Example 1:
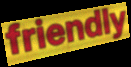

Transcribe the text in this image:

friendly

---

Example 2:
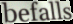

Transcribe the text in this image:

befalls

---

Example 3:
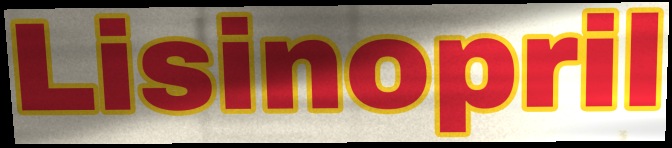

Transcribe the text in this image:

Lisinopril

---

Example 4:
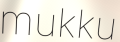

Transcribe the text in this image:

mukku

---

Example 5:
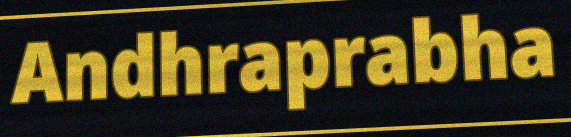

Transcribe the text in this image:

Andhraprabha